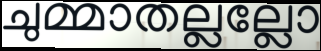
ചുമ്മാതല്ലല്ലോ